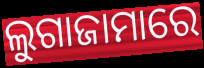
ଲୁଗାଜାମାରେ